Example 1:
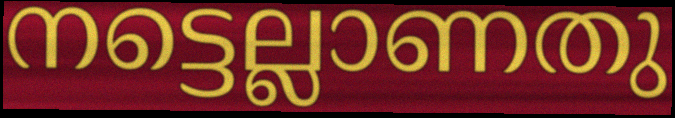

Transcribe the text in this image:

നട്ടെല്ലാണതു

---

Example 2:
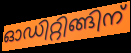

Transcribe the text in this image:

ഓഡിറ്റിങ്ങിന്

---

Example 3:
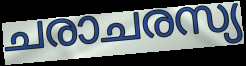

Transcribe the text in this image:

ചരാചരസ്യ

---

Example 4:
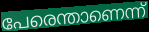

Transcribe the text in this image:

പേരെന്താണെന്ന്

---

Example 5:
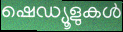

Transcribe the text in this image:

ഷെഡ്യൂളുകൾ